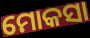
ମୋକସା